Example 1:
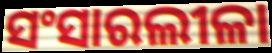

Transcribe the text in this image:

ସଂସାରଲୀଳା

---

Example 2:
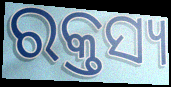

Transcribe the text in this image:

ରକ୍ତସ୍ୟ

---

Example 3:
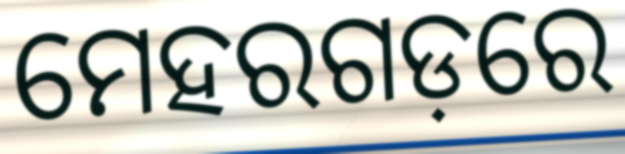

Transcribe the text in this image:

ମେହରଗଡ଼ରେ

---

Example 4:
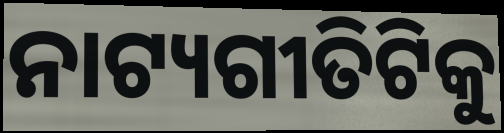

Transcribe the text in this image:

ନାଟ୍ୟଗୀତିଟିକୁ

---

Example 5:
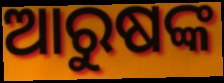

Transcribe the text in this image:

ଆରୁଷଙ୍କ